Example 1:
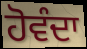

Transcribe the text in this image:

ਹੋਵੰਦਾ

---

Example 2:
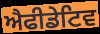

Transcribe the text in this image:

ਐਫੀਡੇਟਿਵ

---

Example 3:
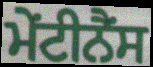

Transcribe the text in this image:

ਮੇਂਟੀਨੈਂਸ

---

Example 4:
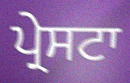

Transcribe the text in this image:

ਪ੍ਰੇਸਟਾ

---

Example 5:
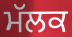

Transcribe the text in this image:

ਮੱਲਕ